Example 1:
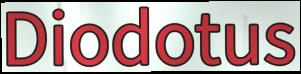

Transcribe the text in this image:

Diodotus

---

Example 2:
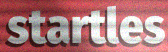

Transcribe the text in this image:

startles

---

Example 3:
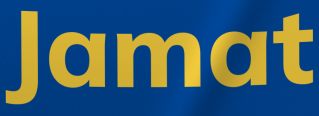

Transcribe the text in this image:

Jamat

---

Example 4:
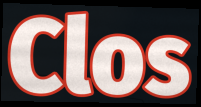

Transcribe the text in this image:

Clos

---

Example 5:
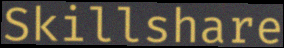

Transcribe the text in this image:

Skillshare